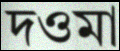
দওমা